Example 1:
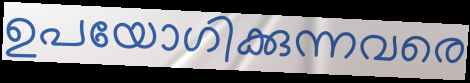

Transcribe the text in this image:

ഉപയോഗിക്കുന്നവരെ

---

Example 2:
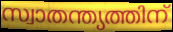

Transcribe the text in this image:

സ്വാതന്ത്യത്തിന്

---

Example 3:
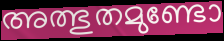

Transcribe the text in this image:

അത്ഭുതമുണ്ടോ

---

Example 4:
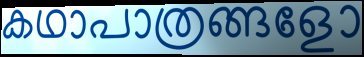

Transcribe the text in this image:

കഥാപാത്രങ്ങളോ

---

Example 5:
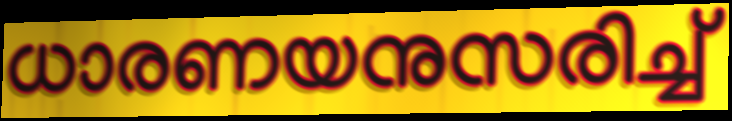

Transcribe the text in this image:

ധാരണയനുസരിച്ച്